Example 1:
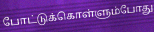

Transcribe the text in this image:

போட்டுக்கொள்ளும்போது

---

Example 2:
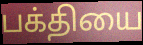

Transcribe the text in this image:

பக்தியை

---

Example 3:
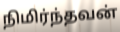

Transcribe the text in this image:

நிமிர்ந்தவன்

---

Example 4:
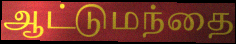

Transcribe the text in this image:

ஆட்டுமந்தை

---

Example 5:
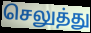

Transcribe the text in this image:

செலுத்து